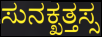
ಸುನಕ್ಖತ್ತಸ್ಸ